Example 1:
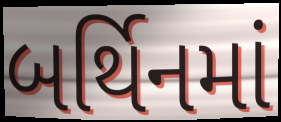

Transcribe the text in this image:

બર્થિનમાં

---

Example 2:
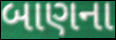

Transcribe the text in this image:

બાણના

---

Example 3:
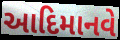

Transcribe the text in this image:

આદિમાનવે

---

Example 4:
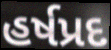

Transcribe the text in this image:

હર્ષપ્રદ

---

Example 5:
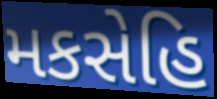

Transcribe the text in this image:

મકસેહિ